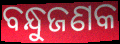
ବନ୍ଧୁଜଣକ